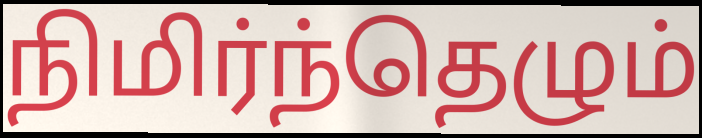
நிமிர்ந்தெழும்